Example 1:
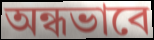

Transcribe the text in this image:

অন্ধভাবে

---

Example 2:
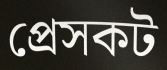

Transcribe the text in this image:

প্রেসকট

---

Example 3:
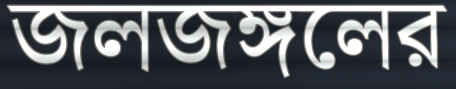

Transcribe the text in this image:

জলজঙ্গলের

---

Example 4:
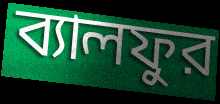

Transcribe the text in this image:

ব্যালফুর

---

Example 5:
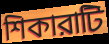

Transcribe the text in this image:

শিকারাটি